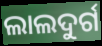
ଲାଲଦୁର୍ଗ